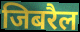
जिबरैल